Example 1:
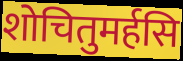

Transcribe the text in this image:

शोचितुमर्हसि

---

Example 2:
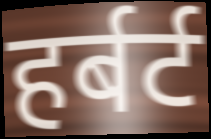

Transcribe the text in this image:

हर्बर्ट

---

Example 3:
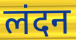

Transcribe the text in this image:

लंदन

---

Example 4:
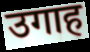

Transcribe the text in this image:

उगाह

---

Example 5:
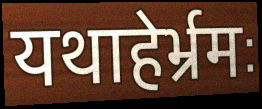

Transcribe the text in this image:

यथाहेर्भ्रमः